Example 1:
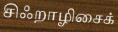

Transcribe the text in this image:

சிஃறாழிசைக்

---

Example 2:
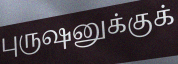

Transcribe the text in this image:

புருஷனுக்குக்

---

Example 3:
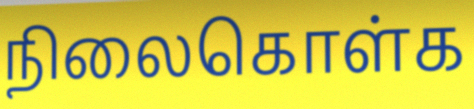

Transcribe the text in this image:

நிலைகொள்க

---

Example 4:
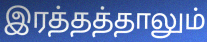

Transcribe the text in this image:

இரத்தத்தாலும்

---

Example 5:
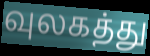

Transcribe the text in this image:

வுலகத்து